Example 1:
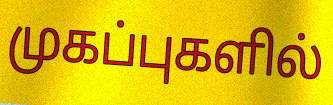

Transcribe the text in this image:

முகப்புகளில்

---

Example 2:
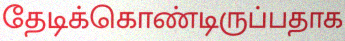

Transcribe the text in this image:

தேடிக்கொண்டிருப்பதாக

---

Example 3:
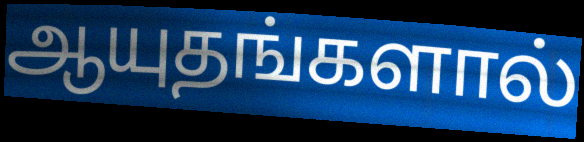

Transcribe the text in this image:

ஆயுதங்களால்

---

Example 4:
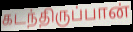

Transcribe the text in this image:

கடந்திருப்பான்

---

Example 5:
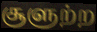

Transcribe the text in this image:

சூளுற்ற